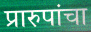
प्रारुपांचा